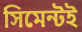
সিমেন্টই